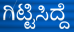
ಗಿಟ್ಟಿಸಿದ್ದೆ